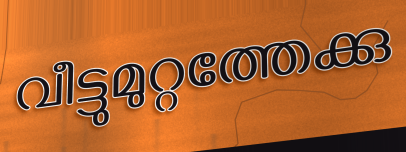
വീട്ടുമുറ്റത്തേക്കു